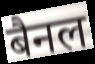
बैनल